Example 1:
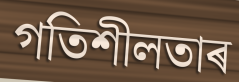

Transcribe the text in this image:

গতিশীলতাৰ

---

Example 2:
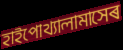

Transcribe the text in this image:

হাইপোথ্যালামাসেৰ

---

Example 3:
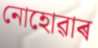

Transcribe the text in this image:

নোহোৱাৰ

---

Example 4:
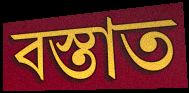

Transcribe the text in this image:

বস্তাত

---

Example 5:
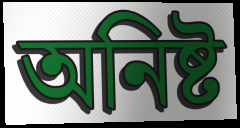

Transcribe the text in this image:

অনিষ্ট